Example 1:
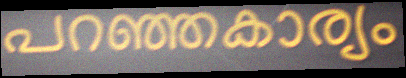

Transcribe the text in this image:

പറഞ്ഞകാര്യം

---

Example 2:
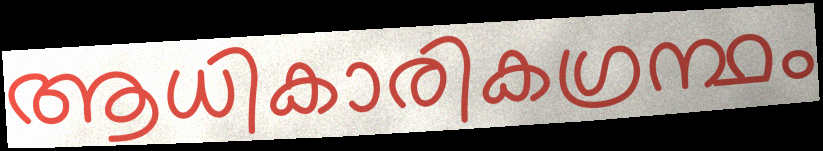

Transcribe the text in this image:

ആധികാരികഗ്രന്ഥം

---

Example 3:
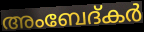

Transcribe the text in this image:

അംബേദ്കർ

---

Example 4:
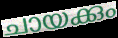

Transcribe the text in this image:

ചായക്കും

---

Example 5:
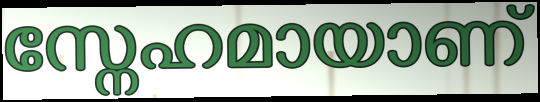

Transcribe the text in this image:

സ്നേഹമായാണ്